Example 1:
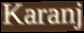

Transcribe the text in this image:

Karanj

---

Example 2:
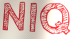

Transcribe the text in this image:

NIQ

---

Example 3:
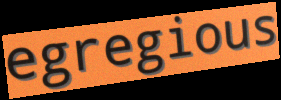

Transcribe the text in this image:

egregious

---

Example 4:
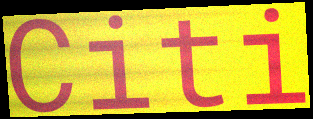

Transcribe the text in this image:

Citi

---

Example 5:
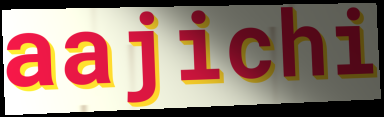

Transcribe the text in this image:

aajichi